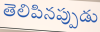
తెలిపినప్పుడు